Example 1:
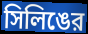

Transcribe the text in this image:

সিলিঙের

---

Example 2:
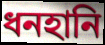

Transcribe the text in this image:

ধনহানি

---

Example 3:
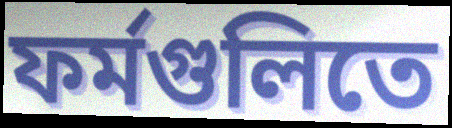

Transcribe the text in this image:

ফর্মগুলিতে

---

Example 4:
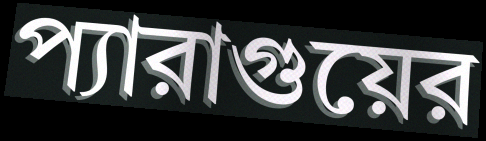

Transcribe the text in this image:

প্যারাগুয়ের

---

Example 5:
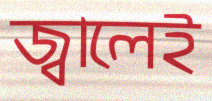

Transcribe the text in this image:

জ্বালেই